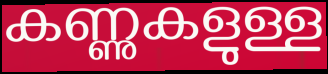
കണ്ണുകളുള്ള